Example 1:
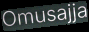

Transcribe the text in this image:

Omusajja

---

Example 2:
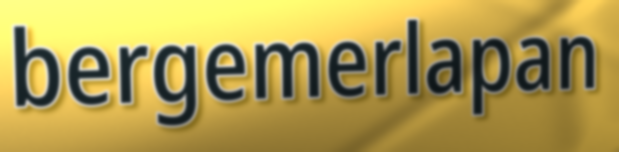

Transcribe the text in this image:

bergemerlapan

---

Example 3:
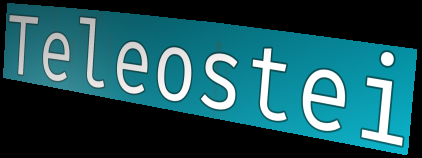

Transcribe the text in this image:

Teleostei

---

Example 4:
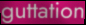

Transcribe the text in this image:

guttation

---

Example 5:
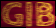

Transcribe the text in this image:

GIB